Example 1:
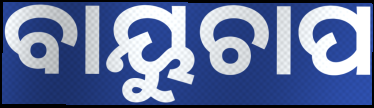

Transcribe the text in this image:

ବାୟୁଚାପ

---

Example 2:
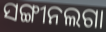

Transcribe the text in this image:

ସଙ୍ଗୀନଲଗା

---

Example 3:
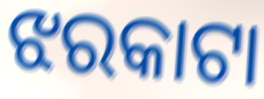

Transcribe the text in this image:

ଝରକାଟା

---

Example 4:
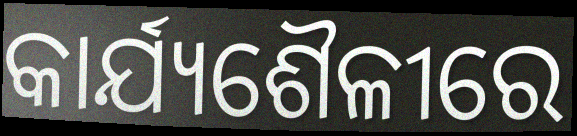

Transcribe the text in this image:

କାର୍ଯ୍ୟଶୈଳୀରେ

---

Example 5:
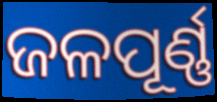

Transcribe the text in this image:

ଜଳପୂର୍ଣ୍ଣ